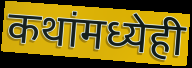
कथांमध्येही